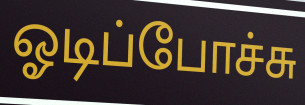
ஓடிப்போச்சு